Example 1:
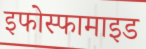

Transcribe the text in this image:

इफोस्फामाइड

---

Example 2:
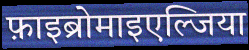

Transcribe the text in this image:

फ़ाइब्रोमाइएल्जिया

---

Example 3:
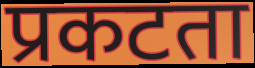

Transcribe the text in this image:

प्रकटता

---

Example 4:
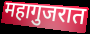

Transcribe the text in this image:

महागुजरात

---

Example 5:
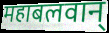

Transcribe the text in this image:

महाबलवान्